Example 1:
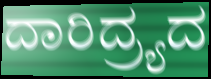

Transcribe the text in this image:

ದಾರಿದ್ರ್ಯದ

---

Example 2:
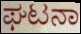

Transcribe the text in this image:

ಘಟನಾ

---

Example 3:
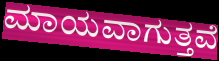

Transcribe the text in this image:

ಮಾಯವಾಗುತ್ತವೆ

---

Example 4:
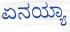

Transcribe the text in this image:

ಏನಯ್ಯಾ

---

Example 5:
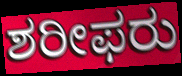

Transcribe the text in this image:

ಶರೀಫರು